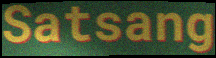
Satsang